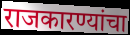
राजकारण्यांचा